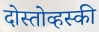
दोस्तोव्हस्की